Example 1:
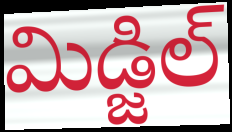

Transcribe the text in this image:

మిడ్జిల్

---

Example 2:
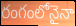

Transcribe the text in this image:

రంగంలోనైనా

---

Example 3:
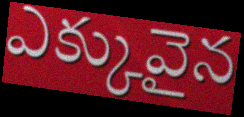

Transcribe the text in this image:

ఎక్కువైన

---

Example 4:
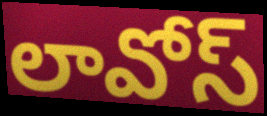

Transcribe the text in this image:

లావోస్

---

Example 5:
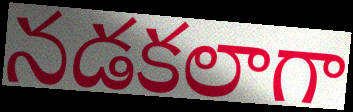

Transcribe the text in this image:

నడకలాగా